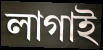
লাগাই